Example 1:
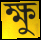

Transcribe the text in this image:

ক্ষু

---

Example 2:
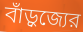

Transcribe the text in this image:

বাঁড়ুজ্যের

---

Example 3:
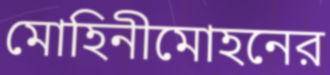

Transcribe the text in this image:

মোহিনীমোহনের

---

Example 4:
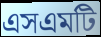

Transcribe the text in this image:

এসএমটি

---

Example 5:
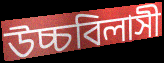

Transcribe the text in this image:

উচ্চবিলাসী